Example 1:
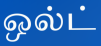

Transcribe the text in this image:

ஒல்ட்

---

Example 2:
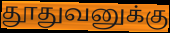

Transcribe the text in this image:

தூதுவனுக்கு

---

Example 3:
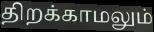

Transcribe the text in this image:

திறக்காமலும்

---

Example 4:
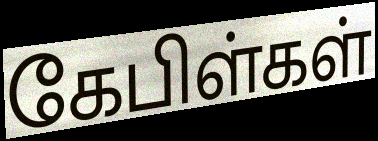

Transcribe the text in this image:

கேபிள்கள்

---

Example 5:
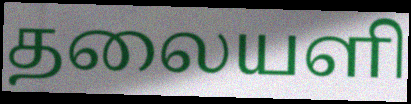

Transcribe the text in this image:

தலையளி